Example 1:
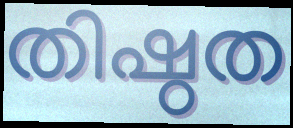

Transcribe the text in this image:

തിഷ്ഠത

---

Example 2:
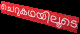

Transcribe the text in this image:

ചെറുകഥയിലൂടെ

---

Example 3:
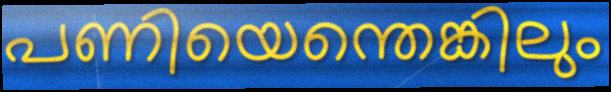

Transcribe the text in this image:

പണിയെന്തെങ്കിലും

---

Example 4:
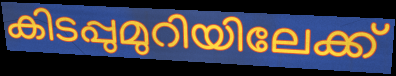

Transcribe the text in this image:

കിടപ്പുമുറിയിലേക്ക്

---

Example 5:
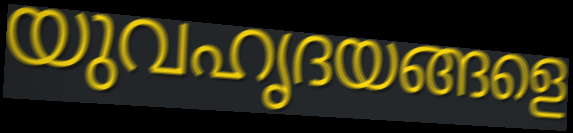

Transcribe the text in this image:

യുവഹൃദയങ്ങളെ